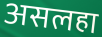
असलहा